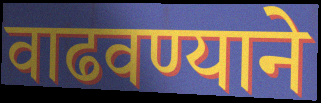
वाढवण्याने